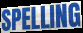
SPELLING